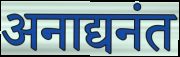
अनाद्यनंत